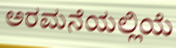
ಅರಮನೆಯಲ್ಲಿಯೆ